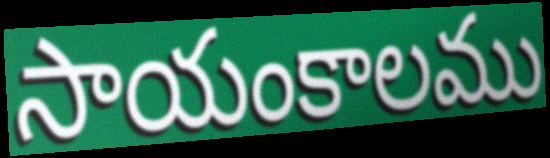
సాయంకాలము